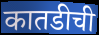
कातडीची